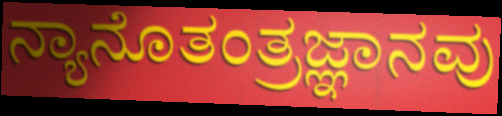
ನ್ಯಾನೊತಂತ್ರಜ್ಞಾನವು